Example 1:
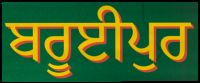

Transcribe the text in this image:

ਬਰੂਈਪੁਰ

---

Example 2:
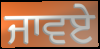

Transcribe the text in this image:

ਜਾਵਏ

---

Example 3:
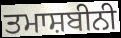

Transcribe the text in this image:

ਤਮਾਸ਼ਬੀਨੀ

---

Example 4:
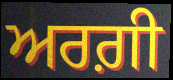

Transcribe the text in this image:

ਅਰਗ਼ੀ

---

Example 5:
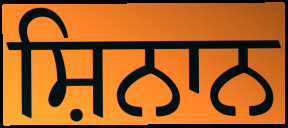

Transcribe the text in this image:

ਸ਼ਿਨਾਨ